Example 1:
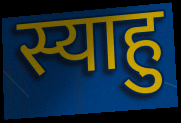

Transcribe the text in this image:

स्याहु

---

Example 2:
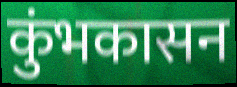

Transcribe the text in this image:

कुंभकासन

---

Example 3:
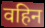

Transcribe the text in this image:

वहिन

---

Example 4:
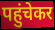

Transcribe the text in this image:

पहुंचेकर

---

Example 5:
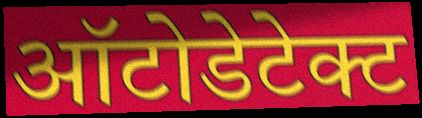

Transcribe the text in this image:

ऑटोडेटेक्ट